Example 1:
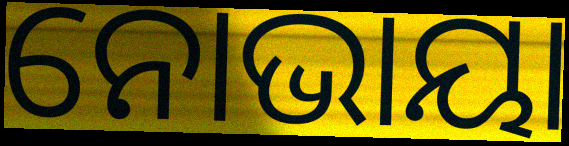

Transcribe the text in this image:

ନୋଭାୟା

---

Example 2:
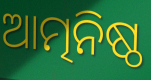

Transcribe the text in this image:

ଆତ୍ମନିଷ୍ଠ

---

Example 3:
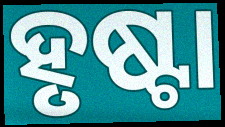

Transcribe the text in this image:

ହୃଷ୍ଟା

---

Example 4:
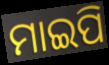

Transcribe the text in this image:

ମାଇପି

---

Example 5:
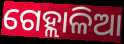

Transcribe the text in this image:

ଗେହ୍ଲାଳିଆ